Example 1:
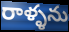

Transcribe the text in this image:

రాళ్ళను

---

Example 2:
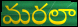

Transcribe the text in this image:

మరలా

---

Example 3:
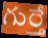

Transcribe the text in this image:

గుర్తే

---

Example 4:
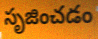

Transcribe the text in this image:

సృజించడం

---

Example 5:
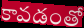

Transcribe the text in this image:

కావడంతో